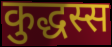
कुद्धस्स